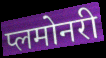
प्लमोनरी